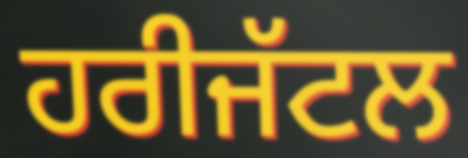
ਹਰੀਜੱਟਲ